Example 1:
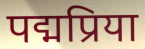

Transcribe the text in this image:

पद्मप्रिया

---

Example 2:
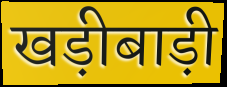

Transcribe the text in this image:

खड़ीबाड़ी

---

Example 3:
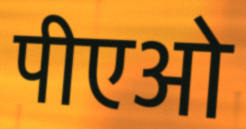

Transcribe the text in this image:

पीएओ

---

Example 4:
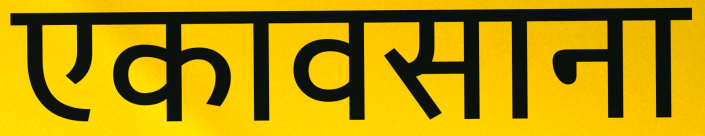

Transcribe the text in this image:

एकावसाना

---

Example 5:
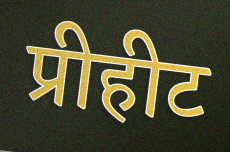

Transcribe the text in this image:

प्रीहीट